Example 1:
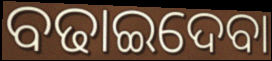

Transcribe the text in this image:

ବଢାଇଦେବା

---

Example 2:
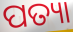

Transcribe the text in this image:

ପତ୍ୟା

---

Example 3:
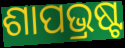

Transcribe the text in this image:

ଶାପଭ୍ରଷ୍ଟ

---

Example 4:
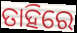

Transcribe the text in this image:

ତାହିରେ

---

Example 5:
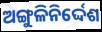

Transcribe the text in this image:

ଅଙ୍ଗୁଳିନିର୍ଦ୍ଦେଶ